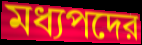
মধ্যপদের